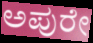
ಅಪುರೇ